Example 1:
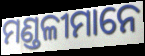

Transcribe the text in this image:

ମଣ୍ଡଳୀମାନେ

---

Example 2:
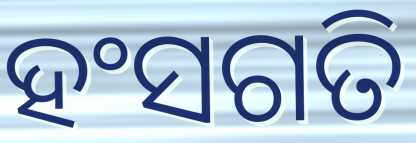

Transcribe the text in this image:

ହଂସଗତି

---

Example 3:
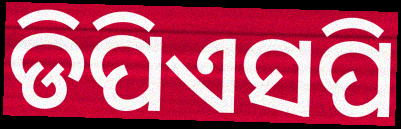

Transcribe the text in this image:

ଡିପିଏସପି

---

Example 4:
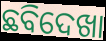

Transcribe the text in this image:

ଛବିଦେଖା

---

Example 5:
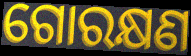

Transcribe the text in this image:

ଗୋରକ୍ଷଣ